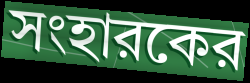
সংহারকের